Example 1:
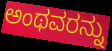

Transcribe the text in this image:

ಅಂಥವರನ್ನು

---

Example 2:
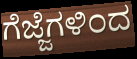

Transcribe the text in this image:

ಗೆಜ್ಜೆಗಳಿಂದ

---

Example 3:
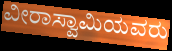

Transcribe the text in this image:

ವೀರಾಸ್ವಾಮಿಯವರು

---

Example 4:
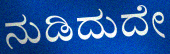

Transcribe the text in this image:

ನುಡಿದುದೇ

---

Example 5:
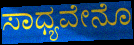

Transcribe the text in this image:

ಸಾಧ್ಯವೇನೊ